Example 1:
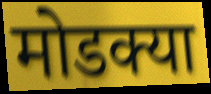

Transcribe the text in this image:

मोडक्या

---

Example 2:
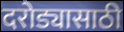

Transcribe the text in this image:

दरोड्यासाठी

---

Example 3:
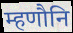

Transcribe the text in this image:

म्हणौनि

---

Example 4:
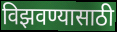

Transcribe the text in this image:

विझवण्यासाठी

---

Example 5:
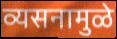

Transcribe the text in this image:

व्यसनामुळे